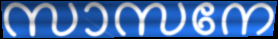
സാസനേ